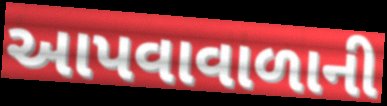
આપવાવાળાની